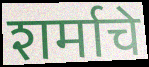
शर्माचे